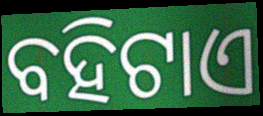
ବହିଟାଏ